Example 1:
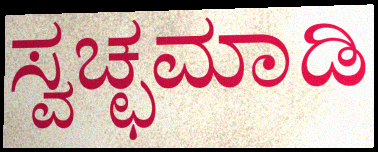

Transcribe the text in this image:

ಸ್ವಚ್ಛಮಾಡಿ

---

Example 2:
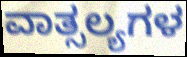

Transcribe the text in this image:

ವಾತ್ಸಲ್ಯಗಳ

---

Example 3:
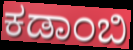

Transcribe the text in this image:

ಕಡಾಂಬಿ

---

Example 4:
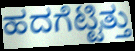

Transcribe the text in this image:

ಹದಗೆಟ್ಟಿತ್ತು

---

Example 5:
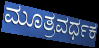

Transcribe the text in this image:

ಮೂತ್ರವರ್ಧಕ